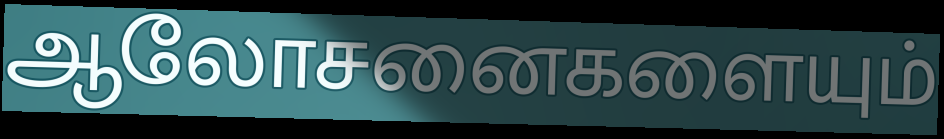
ஆலோசனைகளையும்